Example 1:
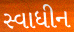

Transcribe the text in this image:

સ્વાધીન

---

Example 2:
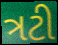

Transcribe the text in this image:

ત્રટી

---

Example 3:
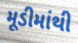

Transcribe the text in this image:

મૂડીમાંથી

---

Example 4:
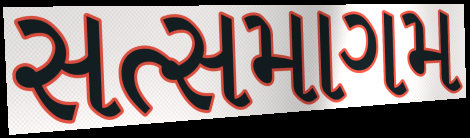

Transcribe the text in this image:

સત્સમાગમ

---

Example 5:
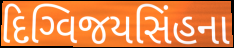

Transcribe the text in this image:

દિગ્વિજયસિંહના